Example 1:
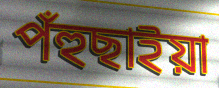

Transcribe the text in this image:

পঁহুছাইয়া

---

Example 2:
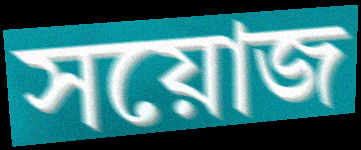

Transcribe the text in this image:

সয়োজ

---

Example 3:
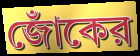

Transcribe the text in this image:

জোঁকের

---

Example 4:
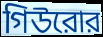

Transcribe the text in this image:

গিউরোর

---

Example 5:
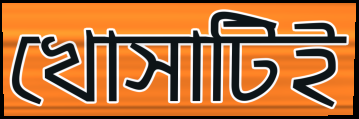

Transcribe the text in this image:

খোসাটিই